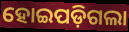
ହୋଇପଡ଼ିଗଲା